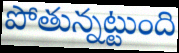
పోతున్నట్టుంది